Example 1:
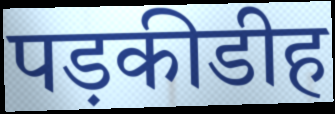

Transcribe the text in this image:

पड़कीडीह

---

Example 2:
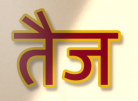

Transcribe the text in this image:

तैज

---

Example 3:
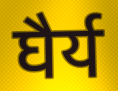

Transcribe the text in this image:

घैर्य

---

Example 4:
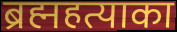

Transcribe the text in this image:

ब्रह्महत्याका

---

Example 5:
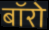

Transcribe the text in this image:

बॉरो